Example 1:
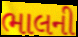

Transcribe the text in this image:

ભાલની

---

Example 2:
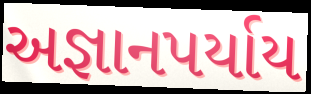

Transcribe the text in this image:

અજ્ઞાનપર્યાય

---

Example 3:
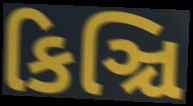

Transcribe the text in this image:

કિઞ્ચિ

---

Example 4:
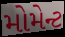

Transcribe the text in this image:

મોમેન્ટ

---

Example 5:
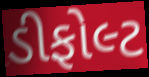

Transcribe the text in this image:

ડીફોલ્ટ